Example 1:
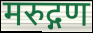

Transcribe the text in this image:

मरुद्गण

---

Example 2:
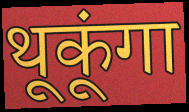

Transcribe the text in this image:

थूकूंगा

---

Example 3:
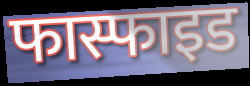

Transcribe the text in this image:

फास्फाइड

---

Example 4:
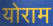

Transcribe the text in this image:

योराम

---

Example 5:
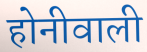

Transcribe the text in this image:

होनीवाली